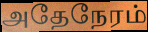
அதேநேரம்